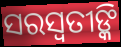
ସରସ୍ୱତୀଙ୍କି